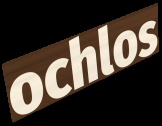
ochlos